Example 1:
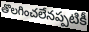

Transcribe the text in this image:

తొలగించలేనప్పటికీ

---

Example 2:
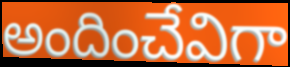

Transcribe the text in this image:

అందించేవిగా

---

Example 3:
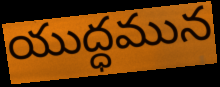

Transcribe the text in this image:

యుద్ధమున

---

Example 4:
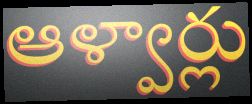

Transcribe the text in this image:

ఆళ్వార్లు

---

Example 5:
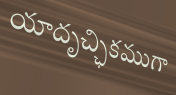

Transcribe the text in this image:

యాదృచ్ఛికముగా